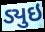
ડ્યુઇ